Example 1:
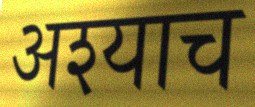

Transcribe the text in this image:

अश्याच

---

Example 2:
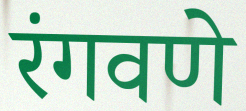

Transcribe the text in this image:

रंगवणे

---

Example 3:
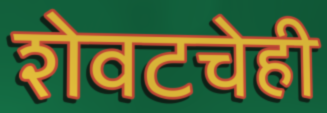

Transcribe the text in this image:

शेवटचेही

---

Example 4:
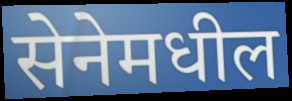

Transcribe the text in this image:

सेनेमधील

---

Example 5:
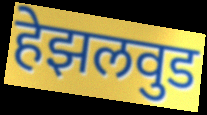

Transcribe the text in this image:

हेझलवुड